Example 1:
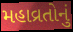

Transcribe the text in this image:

મહાવ્રતોનું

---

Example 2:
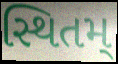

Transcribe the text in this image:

સ્થિતમ્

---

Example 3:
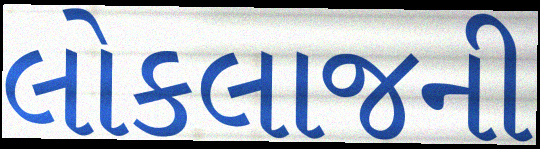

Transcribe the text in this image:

લોકલાજની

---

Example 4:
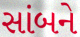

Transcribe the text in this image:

સાંબને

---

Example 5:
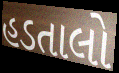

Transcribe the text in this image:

હડતાલો